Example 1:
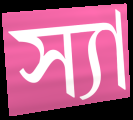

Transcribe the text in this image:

স্যা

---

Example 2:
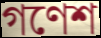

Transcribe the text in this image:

গণেশ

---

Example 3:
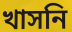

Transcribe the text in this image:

খাসনি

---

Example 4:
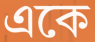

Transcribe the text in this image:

একে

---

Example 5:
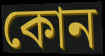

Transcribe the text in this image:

কোন